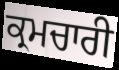
ਕ੍ਰਮਚਾਰੀ